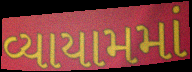
વ્યાયામમાં